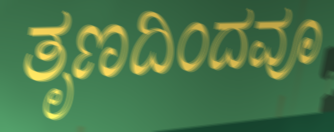
ತೃಣದಿಂದವೂ